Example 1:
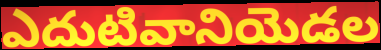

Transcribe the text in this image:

ఎదుటివానియెడల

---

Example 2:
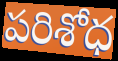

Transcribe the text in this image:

పరిశోధ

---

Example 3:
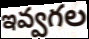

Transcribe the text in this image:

ఇవ్వగల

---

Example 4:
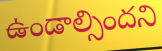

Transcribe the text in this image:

ఉండాల్సిందని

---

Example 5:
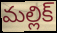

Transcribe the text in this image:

మల్లిక్